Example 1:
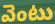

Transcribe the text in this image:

వెంటు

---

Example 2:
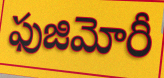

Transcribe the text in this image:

ఫుజిమోరీ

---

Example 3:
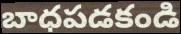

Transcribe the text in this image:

బాధపడకండి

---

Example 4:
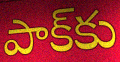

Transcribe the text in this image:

పాక్‌కు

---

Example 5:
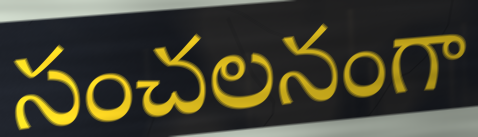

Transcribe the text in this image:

సంచలనంగా